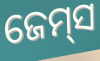
ଜେମ୍‍ସ